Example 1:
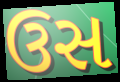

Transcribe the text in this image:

ઉસ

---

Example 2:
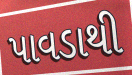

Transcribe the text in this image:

પાવડાથી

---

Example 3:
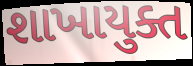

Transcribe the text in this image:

શાખાયુક્ત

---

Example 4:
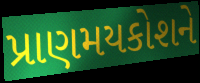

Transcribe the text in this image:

પ્રાણમયકોશને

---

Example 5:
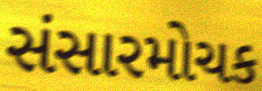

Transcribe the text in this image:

સંસારમોચક